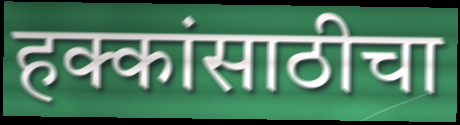
हक्कांसाठीचा